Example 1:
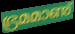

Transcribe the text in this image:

ഭ്രമമാണു്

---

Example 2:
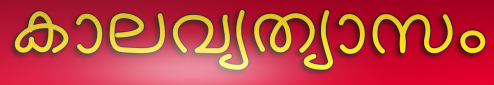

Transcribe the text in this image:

കാലവ്യത്യാസം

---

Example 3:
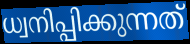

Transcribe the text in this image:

ധ്വനിപ്പിക്കുന്നത്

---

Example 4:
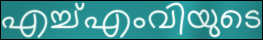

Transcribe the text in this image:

എച്ച്എംവിയുടെ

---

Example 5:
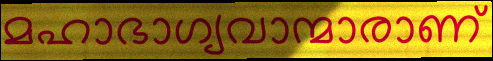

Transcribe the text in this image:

മഹാഭാഗ്യവാന്മാരാണ്